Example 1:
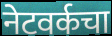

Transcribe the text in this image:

नेटवर्कचा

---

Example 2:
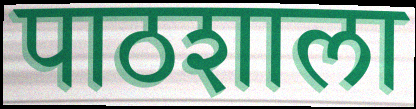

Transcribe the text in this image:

पाठशाला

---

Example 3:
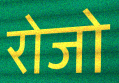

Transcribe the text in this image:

रोजो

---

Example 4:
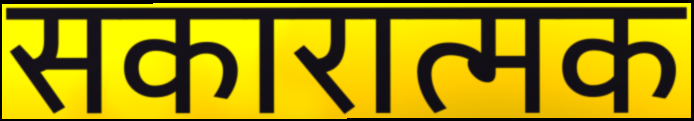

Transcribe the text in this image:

सकारात्मक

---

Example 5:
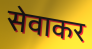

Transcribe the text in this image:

सेवाकर